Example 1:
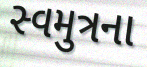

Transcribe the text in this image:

સ્વમુત્રના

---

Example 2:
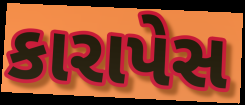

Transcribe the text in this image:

કારાપેસ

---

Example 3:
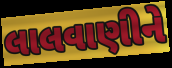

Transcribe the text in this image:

લાલવાણીને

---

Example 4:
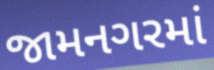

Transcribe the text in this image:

જામનગરમાં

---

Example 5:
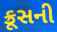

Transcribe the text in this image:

ક્રૂસની